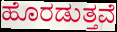
ಹೊರಡುತ್ತವೆ